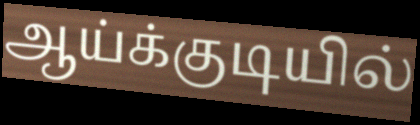
ஆய்க்குடியில்